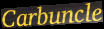
Carbuncle